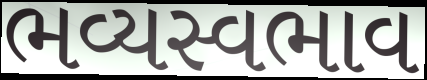
ભવ્યસ્વભાવ